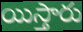
యిస్తారు